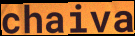
chaiva